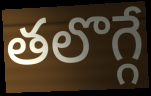
తలొగ్గే